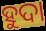
ହୁଦା